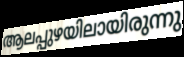
ആലപ്പുഴയിലായിരുന്നു